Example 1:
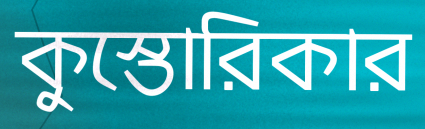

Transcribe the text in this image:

কুস্তোরিকার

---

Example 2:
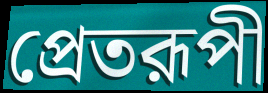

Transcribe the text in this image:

প্রেতরূপী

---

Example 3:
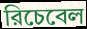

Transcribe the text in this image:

রিচেবেল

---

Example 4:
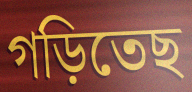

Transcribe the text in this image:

গড়িতেছ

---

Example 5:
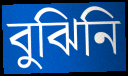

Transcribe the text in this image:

বুঝিনি